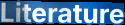
Literature